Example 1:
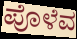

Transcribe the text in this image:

ಪೊಳೆವ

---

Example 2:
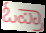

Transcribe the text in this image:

ಓಪ್ರಾ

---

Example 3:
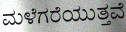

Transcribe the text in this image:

ಮಳೆಗರೆಯುತ್ತವೆ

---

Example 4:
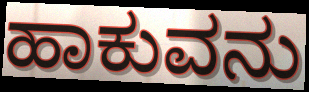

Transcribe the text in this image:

ಹಾಕುವನು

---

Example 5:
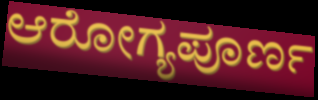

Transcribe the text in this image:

ಆರೋಗ್ಯಪೂರ್ಣ